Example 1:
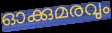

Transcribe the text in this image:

ഓക്കുമരവും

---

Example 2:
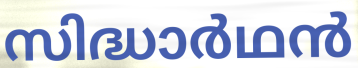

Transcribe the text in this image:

സിദ്ധാർഥൻ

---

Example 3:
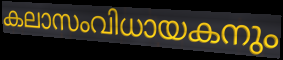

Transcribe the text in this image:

കലാസംവിധായകനും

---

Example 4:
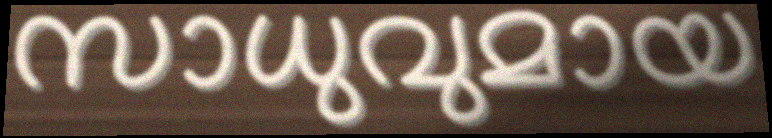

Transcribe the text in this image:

സാധുവുമായ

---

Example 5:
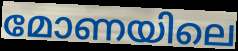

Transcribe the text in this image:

മോണയിലെ